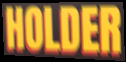
HOLDER